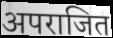
अपराजित